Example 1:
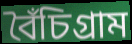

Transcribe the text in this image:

বৈঁচিগ্রাম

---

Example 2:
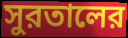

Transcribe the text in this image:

সুরতালের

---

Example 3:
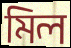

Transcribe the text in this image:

মিল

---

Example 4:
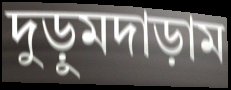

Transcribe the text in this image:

দুড়ুমদাড়াম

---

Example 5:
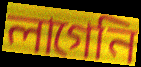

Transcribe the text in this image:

লাগেনি